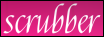
scrubber